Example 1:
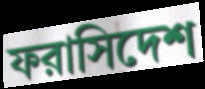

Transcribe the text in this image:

ফরাসিদেশ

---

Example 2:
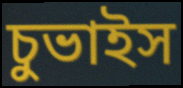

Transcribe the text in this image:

চুভাইস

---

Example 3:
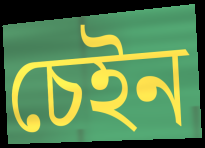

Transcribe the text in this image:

চেইন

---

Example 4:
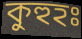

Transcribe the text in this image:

কুহুহঃ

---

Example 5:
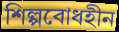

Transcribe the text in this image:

শিল্পবোধহীন